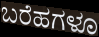
ಬರೆಹಗಳೂ